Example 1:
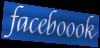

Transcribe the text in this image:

faceboook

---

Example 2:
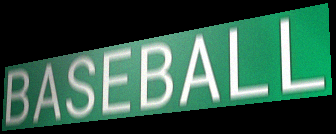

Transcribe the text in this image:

BASEBALL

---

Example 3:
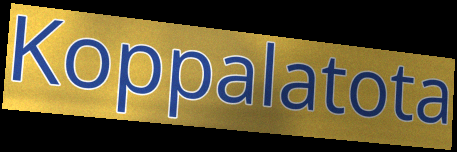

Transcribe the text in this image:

Koppalatota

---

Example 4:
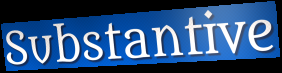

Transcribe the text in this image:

Substantive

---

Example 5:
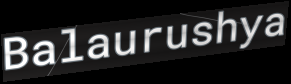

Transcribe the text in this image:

Balaurushya